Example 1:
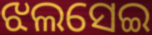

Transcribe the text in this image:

ଝଲସେଇ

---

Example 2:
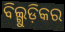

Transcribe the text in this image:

ବିଲ୍ଗୁଡ଼ିକର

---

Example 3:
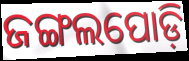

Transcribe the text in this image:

ଜଙ୍ଗଲପୋଡ଼ି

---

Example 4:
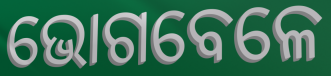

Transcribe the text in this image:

ଭୋଗବେଳେ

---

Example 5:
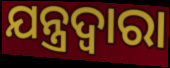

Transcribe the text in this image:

ଯନ୍ତ୍ରଦ୍ଵାରା